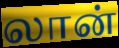
லான்